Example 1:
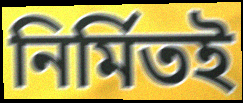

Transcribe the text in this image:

নির্মিতই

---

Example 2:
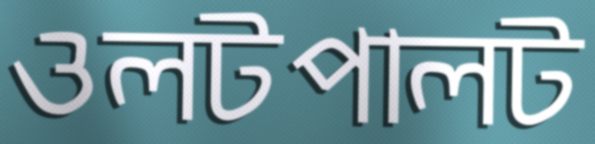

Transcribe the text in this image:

ওলটপালট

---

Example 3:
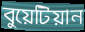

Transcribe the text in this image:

বুয়েটিয়ান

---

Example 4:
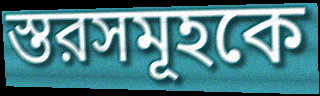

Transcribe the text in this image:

স্তরসমূহকে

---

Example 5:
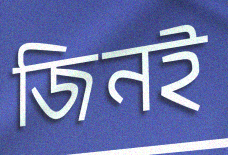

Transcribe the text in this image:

জিনই